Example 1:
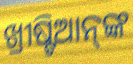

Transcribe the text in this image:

ଖ୍ରୀଷ୍ଟିଆନ୍‌ଙ୍କ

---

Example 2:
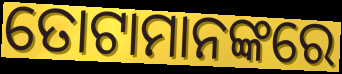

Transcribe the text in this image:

ତୋଟାମାନଙ୍କରେ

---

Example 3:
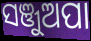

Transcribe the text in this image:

ସଞ୍ଜୁଅପା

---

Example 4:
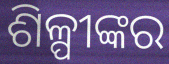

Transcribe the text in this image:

ଶିଳ୍ପୀଙ୍କର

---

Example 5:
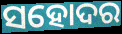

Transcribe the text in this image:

ସହୋଦର